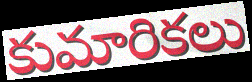
కుమారికలు